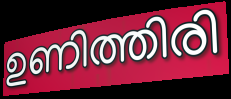
ഉണിത്തിരി